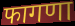
फागणा